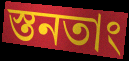
স্তনতাং